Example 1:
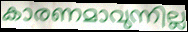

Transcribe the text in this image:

കാരണമാവുന്നില്ല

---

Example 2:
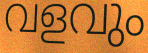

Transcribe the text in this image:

വളവും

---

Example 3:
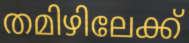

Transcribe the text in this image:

തമിഴിലേക്ക്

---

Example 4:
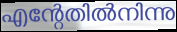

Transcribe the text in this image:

എന്റേതിൽനിന്നു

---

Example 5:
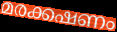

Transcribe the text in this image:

മരക്കഷണം